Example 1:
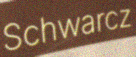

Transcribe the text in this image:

Schwarcz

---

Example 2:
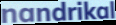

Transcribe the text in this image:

nandrikal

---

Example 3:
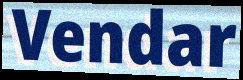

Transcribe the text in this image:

Vendar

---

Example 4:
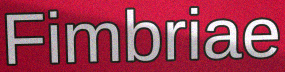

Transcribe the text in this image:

Fimbriae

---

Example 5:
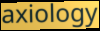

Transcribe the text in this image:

axiology